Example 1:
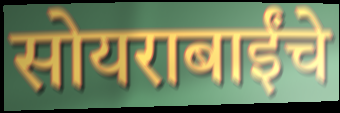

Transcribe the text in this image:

सोयराबाईंचे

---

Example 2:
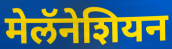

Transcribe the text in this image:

मेलॅनेशियन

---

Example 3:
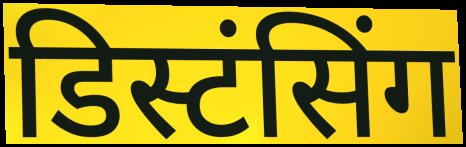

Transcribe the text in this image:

डिस्टंसिंग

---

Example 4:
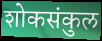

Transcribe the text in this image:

शोकसंकुल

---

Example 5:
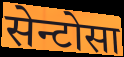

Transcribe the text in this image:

सेन्टोसा